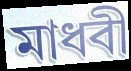
মাধবী